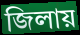
জিলায়